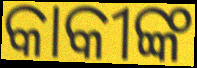
କାକୀଙ୍କ